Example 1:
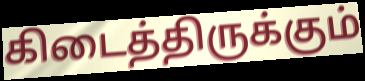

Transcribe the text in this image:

கிடைத்திருக்கும்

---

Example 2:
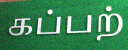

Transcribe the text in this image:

கப்பற்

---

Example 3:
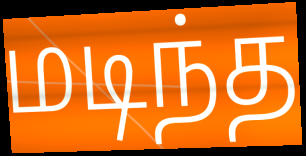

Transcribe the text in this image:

மடிந்த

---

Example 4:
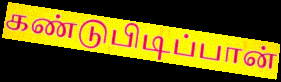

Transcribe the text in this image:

கண்டுபிடிப்பான்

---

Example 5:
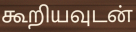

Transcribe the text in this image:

கூறியவுடன்